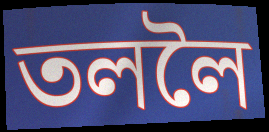
তললৈ